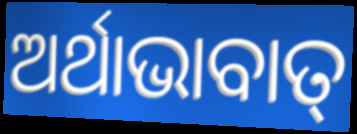
ଅର୍ଥାଭାବାତ୍